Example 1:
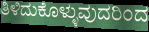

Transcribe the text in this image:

ತಿಳಿದುಕೊಳ್ಳುವುದರಿಂದ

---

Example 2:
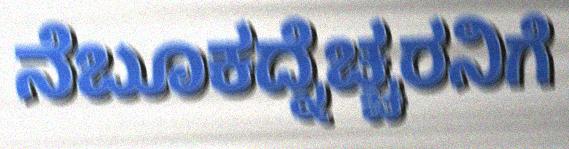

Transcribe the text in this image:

ನೆಬೂಕದ್ನೆಚ್ಚರನಿಗೆ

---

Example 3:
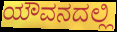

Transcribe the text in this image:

ಯೌವನದಲ್ಲಿ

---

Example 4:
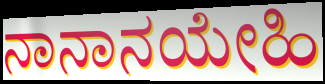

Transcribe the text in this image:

ನಾನಾನಯೇಹಿ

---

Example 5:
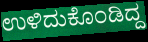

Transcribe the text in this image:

ಉಳಿದುಕೊಂಡಿದ್ದ